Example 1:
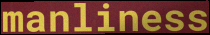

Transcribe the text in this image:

manliness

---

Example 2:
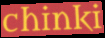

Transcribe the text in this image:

chinki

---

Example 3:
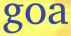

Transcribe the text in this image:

goa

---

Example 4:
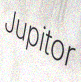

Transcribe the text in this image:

Jupitor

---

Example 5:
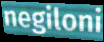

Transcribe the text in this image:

negiloni